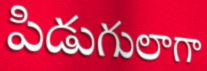
పిడుగులాగా